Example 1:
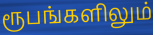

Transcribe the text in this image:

ரூபங்களிலும்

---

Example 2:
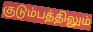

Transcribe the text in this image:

குடும்பத்திலும்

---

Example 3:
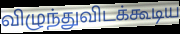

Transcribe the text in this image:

விழுந்துவிடக்கூடிய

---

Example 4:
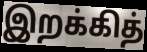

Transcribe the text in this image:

இறக்கித்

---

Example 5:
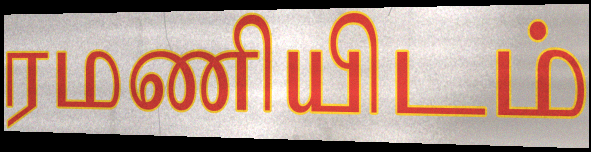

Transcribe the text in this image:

ரமணியிடம்